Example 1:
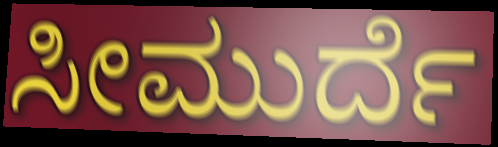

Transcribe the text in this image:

ಸೀಮುರ್ದೆ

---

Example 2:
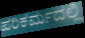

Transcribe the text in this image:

ಪರಿಕರ್ಮದಲ್ಲಿ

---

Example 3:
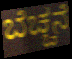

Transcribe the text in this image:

ಬೆಚ್ಚನೆ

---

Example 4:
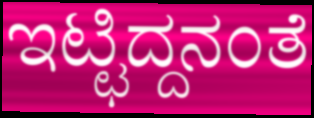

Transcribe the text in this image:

ಇಟ್ಟಿದ್ದನಂತೆ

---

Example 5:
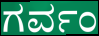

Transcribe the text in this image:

ಗರ್ವಂ